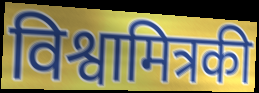
विश्वामित्रकी